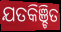
ଯତକିଞ୍ଚିତ